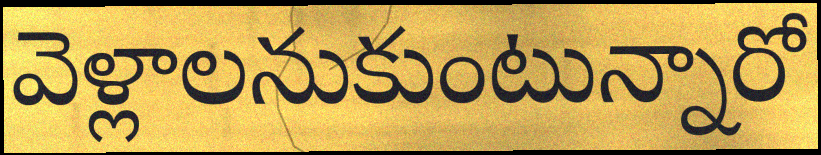
వెళ్లాలనుకుంటున్నారో